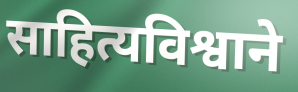
साहित्यविश्वाने